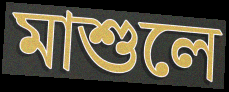
মাশুলে